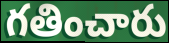
గతించారు